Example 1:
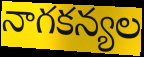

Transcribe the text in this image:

నాగకన్యల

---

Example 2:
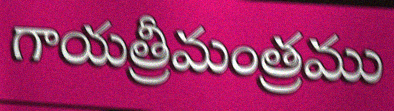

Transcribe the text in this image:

గాయత్రీమంత్రము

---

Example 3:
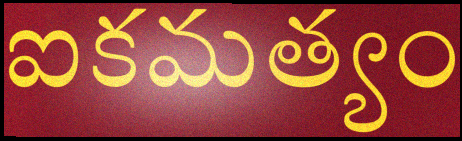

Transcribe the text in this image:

ఐకమత్యం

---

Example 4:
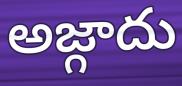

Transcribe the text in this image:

అజ్గాదు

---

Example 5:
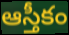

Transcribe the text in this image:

ఆస్తీకం